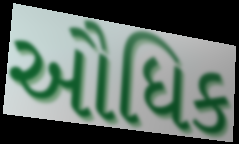
ઔધિક